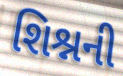
શિશ્નની